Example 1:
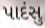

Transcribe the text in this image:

પાદંસુ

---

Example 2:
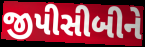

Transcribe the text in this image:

જીપીસીબીને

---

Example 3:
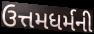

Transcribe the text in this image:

ઉત્તમધર્મની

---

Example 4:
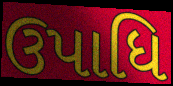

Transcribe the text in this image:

ઉપાધિ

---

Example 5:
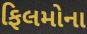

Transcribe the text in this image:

ફિલમોના